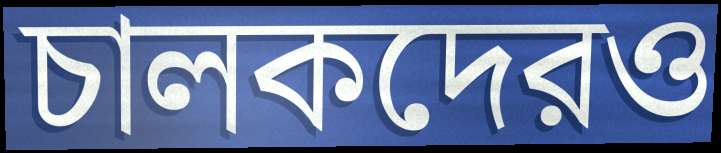
চালকদেরও